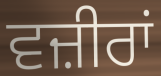
ਵਜ਼ੀਰਾਂ